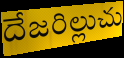
దేజరిల్లుచు